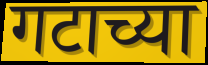
गटाच्या